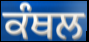
ਕੰਥਲ